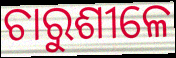
ଚାରୁଶୀଳେ